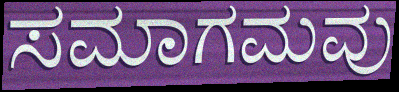
ಸಮಾಗಮವು